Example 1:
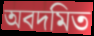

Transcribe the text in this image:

অবদমিত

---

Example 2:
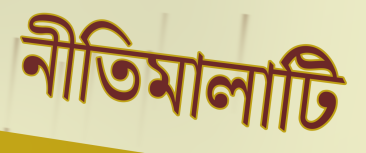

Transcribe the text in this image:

নীতিমালাটি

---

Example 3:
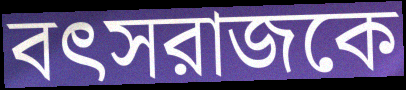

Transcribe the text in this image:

বৎসরাজকে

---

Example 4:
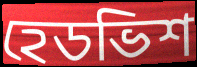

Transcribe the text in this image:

হেডভিশ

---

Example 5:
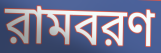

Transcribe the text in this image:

রামবরণ